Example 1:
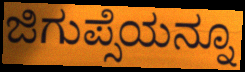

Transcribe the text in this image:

ಜಿಗುಪ್ಸೆಯನ್ನೂ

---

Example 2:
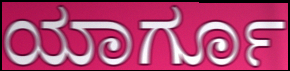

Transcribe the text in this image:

ಯಾರ್ಗೂ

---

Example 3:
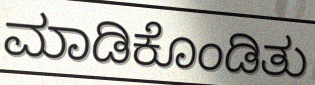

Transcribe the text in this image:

ಮಾಡಿಕೊಂಡಿತು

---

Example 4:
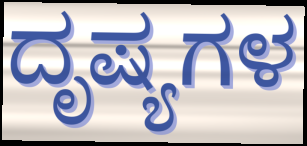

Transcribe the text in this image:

ದೃಷ್ಯಗಳ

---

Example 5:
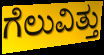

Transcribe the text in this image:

ಗೆಲುವಿತ್ತು